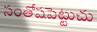
సంతోషపెట్టుచు